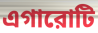
এগারোটি